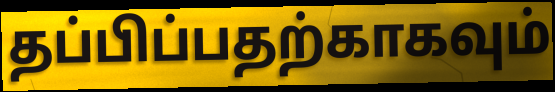
தப்பிப்பதற்காகவும்